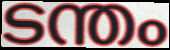
ടന്തം